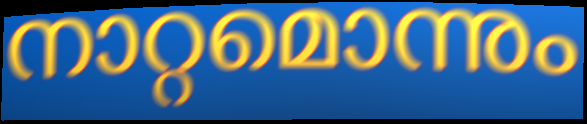
നാറ്റമൊന്നും